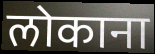
लोकाना